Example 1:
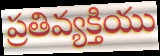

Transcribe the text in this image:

ప్రతివ్యక్తియు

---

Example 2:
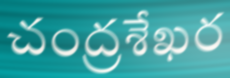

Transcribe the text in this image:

చంద్రశేఖర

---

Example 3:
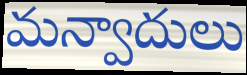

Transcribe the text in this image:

మన్వాదులు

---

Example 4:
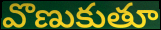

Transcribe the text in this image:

వొణుకుతూ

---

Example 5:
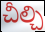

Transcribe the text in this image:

చీల్చి